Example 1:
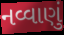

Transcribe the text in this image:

નવ્વાણું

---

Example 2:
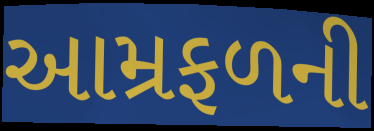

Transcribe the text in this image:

આમ્રફળની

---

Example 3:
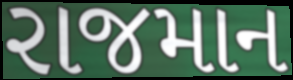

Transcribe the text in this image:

રાજમાન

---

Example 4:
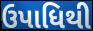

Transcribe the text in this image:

ઉપાધિથી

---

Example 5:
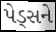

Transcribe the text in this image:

પેડ્સને